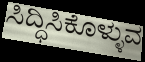
ಸಿದ್ಧಿಸಿಕೊಳ್ಳುವ